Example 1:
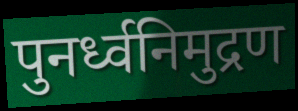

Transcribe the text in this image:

पुनर्ध्वनिमुद्रण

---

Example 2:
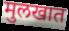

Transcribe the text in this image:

मुलखात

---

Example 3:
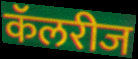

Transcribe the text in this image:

कॅलरीज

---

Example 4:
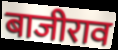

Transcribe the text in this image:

बाजीराव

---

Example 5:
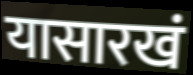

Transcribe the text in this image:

यासारखं